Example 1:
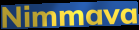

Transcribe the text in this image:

Nimmava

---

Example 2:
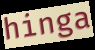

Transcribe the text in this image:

hinga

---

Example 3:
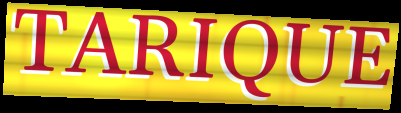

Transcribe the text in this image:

TARIQUE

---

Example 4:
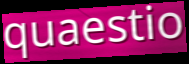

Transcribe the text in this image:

quaestio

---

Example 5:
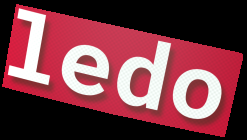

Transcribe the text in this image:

ledo